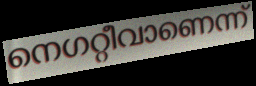
നെഗറ്റീവാണെന്ന്